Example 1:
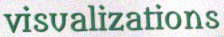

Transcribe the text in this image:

visualizations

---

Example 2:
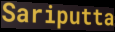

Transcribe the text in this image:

Sariputta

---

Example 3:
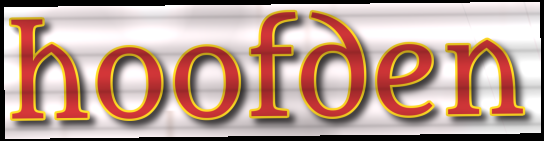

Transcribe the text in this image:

hoofden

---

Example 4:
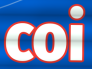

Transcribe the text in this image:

coi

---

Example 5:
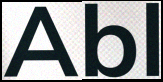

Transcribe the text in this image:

Abl